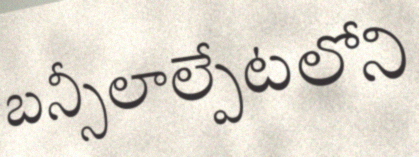
బన్సీలాల్పేటలోని